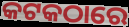
କଟକଠାରେ